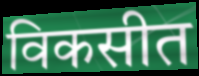
विकसीत